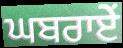
ਘਬਰਾਏਂ